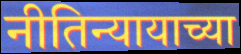
नीतिन्यायाच्या